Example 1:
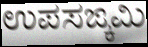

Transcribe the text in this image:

ಉಪಸಙ್ಕಮಿ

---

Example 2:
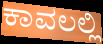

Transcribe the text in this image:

ಕಾವಲಲ್ಲಿ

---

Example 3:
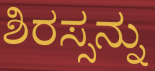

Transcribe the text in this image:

ಶಿರಸ್ಸನ್ನು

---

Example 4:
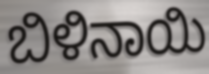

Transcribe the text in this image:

ಬಿಳಿನಾಯಿ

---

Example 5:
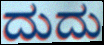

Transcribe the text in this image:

ದುದು